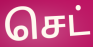
செட்